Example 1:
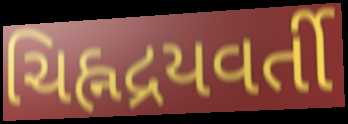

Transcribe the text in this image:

ચિહ્નદ્રયવર્તી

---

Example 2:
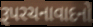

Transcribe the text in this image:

રૂપરચનાવાદનો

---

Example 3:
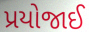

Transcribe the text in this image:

પ્રયોજાઈ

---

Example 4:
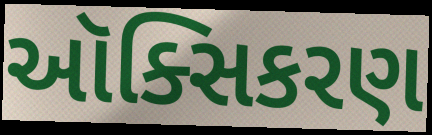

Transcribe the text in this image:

ઑક્સિકરણ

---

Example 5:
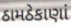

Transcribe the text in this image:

ઠામઠેકાણાં